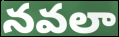
నవలా